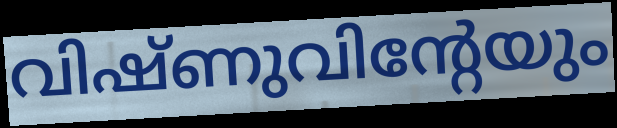
വിഷ്ണുവിന്റേയും